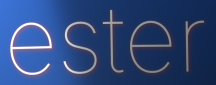
ester